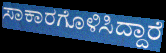
ಸಾಕಾರಗೊಳಿಸಿದ್ದಾರೆ